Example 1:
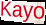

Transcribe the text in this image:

Kayo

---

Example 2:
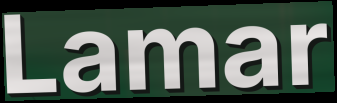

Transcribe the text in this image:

Lamar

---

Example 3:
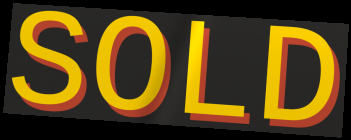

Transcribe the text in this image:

SOLD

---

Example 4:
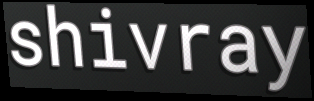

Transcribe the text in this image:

shivray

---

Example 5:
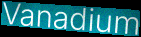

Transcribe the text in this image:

Vanadium